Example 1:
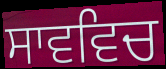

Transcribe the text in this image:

ਸਾਵਵਿਚ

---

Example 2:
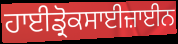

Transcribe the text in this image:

ਹਾਈਡ੍ਰੋਕਸਾਈਜ਼ਾਈਨ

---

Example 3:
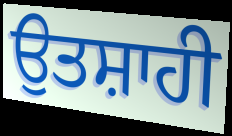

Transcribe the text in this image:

ਉਤਸ਼ਾਹੀ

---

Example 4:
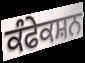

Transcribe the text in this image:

ਕੰਫੇਕਸ਼ਨ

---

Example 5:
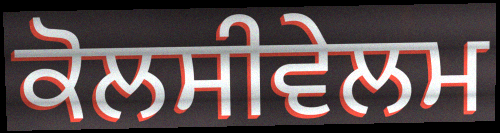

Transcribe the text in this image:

ਕੋਲਸੀਵੇਲਮ